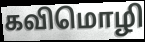
கவிமொழி